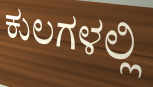
ಕುಲಗಳಲ್ಲಿ